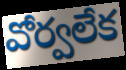
వోర్వలేక